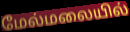
மேல்மலையில்